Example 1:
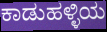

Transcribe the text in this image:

ಕಾಡುಹಳ್ಳಿಯ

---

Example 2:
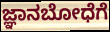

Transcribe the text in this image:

ಜ್ಞಾನಬೋಧೆಗೆ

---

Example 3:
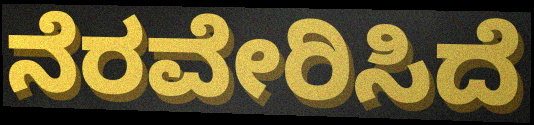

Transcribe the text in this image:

ನೆರವೇರಿಸಿದೆ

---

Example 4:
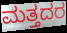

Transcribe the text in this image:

ಮತ್ತದರ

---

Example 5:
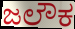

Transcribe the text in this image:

ಜಲೌಕ